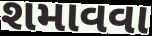
શમાવવા